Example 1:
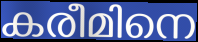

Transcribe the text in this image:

കരീമിനെ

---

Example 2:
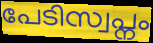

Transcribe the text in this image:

പേടിസ്വപ്നം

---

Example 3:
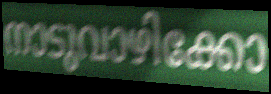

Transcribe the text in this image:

നാടുവാഴിക്കോ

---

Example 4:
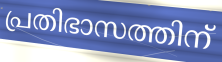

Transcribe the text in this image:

പ്രതിഭാസത്തിന്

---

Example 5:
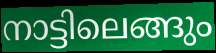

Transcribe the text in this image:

നാട്ടിലെങ്ങും